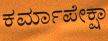
ಕರ್ಮಾಪೇಕ್ಷಾ